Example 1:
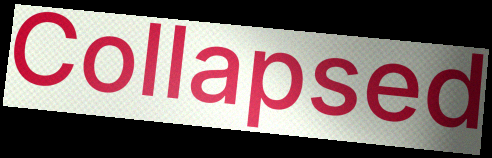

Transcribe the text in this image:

Collapsed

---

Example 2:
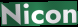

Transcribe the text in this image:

Nicon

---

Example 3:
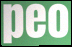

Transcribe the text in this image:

peo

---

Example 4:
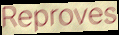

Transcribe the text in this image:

Reproves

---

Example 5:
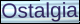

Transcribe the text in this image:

Ostalgia